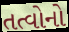
તત્વોનો